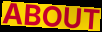
ABOUT